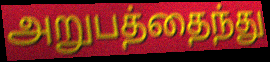
அறுபத்தைந்து